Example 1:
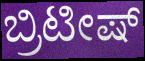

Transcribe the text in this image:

ಬ್ರಿಟೀಷ್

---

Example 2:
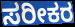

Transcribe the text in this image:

ಸರೀಕರ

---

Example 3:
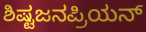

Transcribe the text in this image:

ಶಿಷ್ಟಜನಪ್ರಿಯನ್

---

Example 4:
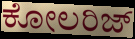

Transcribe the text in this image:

ಕೋಲರಿಜ್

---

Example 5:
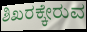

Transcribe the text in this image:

ಶಿಖರಕ್ಕೇರುವ